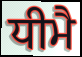
ਧੀਮੈ